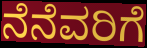
ನೆನೆವರಿಗೆ